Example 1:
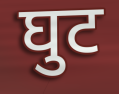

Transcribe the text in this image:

घुट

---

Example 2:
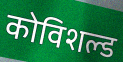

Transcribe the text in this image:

कोविशल्ड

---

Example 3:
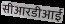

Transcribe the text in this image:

सीआरडीआई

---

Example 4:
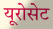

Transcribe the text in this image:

यूरोसेट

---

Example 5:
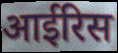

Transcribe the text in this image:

आईरिस